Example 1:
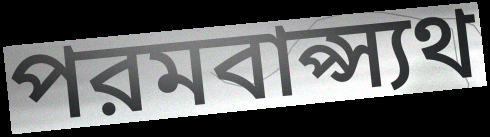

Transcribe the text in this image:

পরমবাপ্স্যথ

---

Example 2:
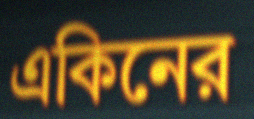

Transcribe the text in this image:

একিনের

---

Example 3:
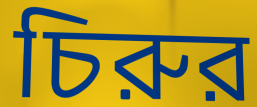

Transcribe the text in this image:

চিরুর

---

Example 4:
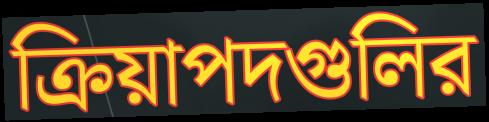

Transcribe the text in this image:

ক্রিয়াপদগুলির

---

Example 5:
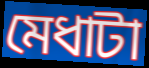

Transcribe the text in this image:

মেধাটা